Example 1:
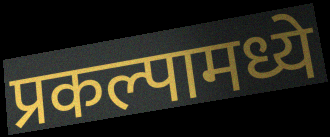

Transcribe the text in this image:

प्रकल्पामध्ये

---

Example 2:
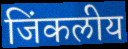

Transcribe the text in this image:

जिंकलीय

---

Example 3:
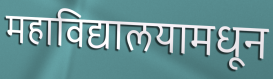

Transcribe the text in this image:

महाविद्यालयामधून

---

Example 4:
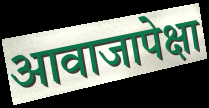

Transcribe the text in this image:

आवाजापेक्षा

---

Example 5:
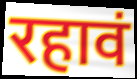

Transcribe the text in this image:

रहावं